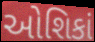
ઓશિકાં